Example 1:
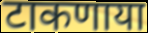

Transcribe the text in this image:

टाकणाया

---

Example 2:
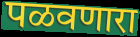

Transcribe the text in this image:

पळवणारा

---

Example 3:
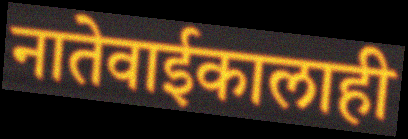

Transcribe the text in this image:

नातेवाईकालाही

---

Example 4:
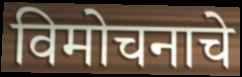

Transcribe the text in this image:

विमोचनाचे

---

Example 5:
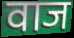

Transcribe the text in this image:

वाज